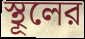
স্থূলের